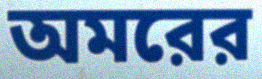
অমরের